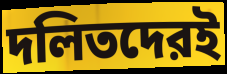
দলিতদেরই